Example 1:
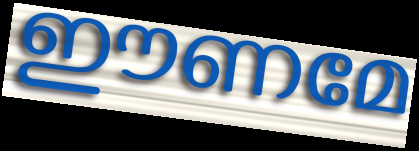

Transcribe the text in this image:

ഈണമേ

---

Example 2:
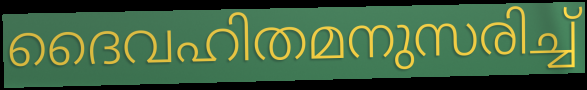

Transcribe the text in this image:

ദൈവഹിതമനുസരിച്ച്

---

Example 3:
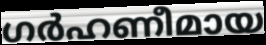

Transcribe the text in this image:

ഗർഹണീമായ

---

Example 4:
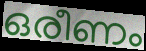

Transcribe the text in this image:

ഒരീണം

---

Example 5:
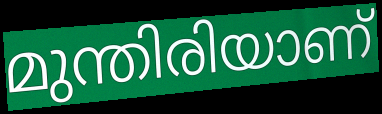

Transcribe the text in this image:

മുന്തിരിയാണ്